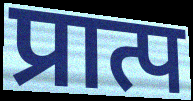
प्रात्प